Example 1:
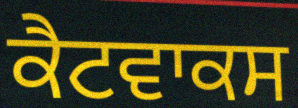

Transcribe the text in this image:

ਕੈਟਵਾਕਸ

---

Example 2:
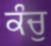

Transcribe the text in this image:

ਕੰਚੁ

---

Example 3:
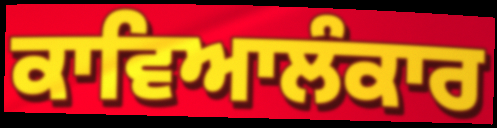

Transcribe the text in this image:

ਕਾਵਿਆਲੰਕਾਰ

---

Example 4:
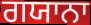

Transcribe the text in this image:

ਗਯਾਨਾ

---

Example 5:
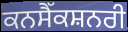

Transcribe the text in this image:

ਕਨਸੈੱਕਸ਼ਨਰੀ